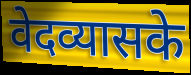
वेदव्यासके